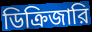
ডিক্রিজারি